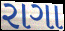
રાગા